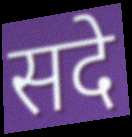
सदे